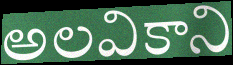
అలవికాని